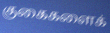
குகைகளைக்